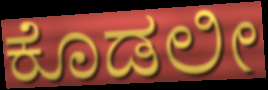
ಕೊಡಲೀ